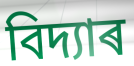
বিদ্যাৰ